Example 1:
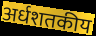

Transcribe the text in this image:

अर्धशतकीय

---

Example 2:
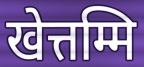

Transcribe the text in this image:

खेत्तम्मि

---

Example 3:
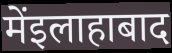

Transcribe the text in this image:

मेंइलाहाबाद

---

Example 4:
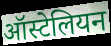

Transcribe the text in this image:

ऑस्टेलियन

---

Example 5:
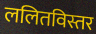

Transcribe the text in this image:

ललितविस्तर